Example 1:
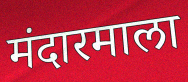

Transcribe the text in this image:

मंदारमाला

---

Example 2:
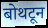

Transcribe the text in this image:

बोथटून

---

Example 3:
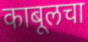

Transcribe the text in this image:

काबूलचा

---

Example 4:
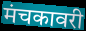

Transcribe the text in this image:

मंचकावरी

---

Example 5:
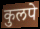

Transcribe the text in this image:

कुलपे